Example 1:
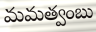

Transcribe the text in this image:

మమత్వంబు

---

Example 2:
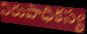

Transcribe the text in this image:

నిరుపాధికస్య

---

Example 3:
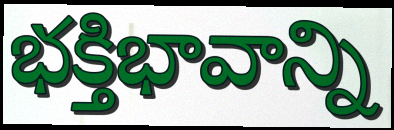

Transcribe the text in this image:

భక్తిభావాన్ని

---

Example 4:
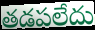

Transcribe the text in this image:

తడపలేదు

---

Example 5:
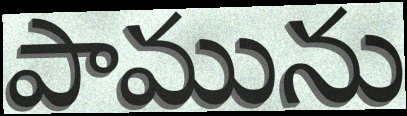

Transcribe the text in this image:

పామును